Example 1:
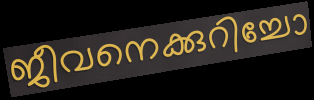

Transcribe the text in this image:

ജീവനെക്കുറിച്ചോ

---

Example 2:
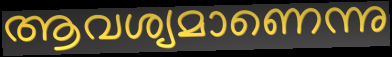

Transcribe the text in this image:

ആവശ്യമാണെന്നു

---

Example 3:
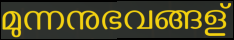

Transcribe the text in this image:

മുന്നനുഭവങ്ങള്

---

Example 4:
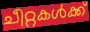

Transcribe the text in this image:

ചീറ്റകൾക്ക്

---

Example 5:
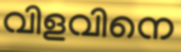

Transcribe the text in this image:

വിളവിനെ